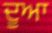
ਦੂਆ